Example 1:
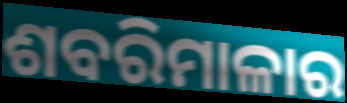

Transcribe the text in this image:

ଶବରିମାଳାର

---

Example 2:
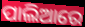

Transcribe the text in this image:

ପାଲିଆରେ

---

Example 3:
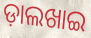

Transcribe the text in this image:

ଡ଼ାଲଖାଇ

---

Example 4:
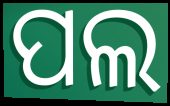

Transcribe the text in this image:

ପଲ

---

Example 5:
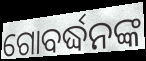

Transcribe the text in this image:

ଗୋବର୍ଦ୍ଧନଙ୍କ